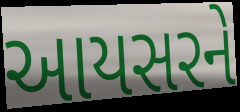
આયસરને